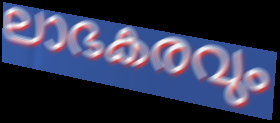
ലാഭകരവും